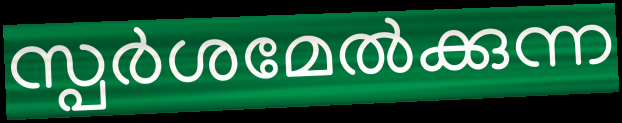
സ്പർശമേൽക്കുന്ന